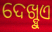
ଦେଖ୍ହୁଏ